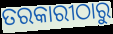
ତରକାରୀଠାରୁ